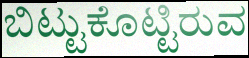
ಬಿಟ್ಟುಕೊಟ್ಟಿರುವ